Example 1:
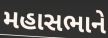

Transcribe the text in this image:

મહાસભાને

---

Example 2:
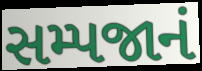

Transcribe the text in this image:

સમ્પજાનં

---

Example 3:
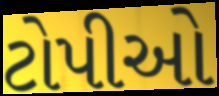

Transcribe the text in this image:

ટોપીઓ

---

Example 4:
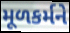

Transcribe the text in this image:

મૂળકર્મને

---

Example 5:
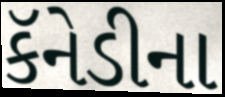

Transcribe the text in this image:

કૅનેડીના